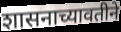
शासनाच्यावतीने